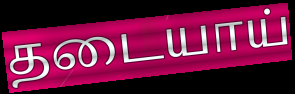
தடையாய்